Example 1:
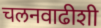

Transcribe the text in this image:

चलनवाढीशी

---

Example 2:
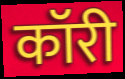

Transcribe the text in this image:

कॉरी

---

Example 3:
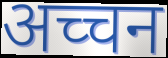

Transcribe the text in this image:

अच्चन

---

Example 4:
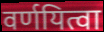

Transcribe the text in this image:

वर्णयित्वा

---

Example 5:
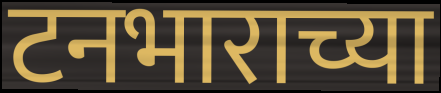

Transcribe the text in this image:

टनभाराच्या